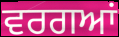
ਵਰਗਆਂ